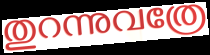
തുറന്നുവത്രേ